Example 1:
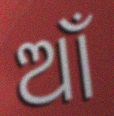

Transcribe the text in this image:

ଆଁ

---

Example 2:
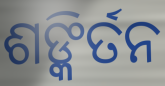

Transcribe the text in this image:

ଶଙ୍କିର୍ତନ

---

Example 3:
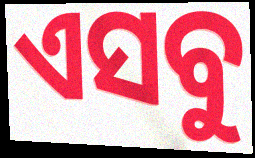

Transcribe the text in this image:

ଏସବୁ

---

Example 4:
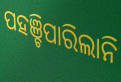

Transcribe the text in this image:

ପହଞ୍ଚିପାରିଲାନି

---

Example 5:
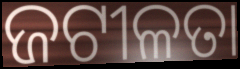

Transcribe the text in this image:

ଜଟୀଳତା